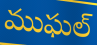
ముఘల్